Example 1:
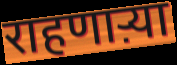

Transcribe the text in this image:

राहणाऱ्‍या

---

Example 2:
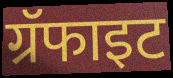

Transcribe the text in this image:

ग्रॅफाइट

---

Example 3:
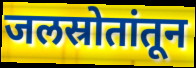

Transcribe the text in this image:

जलस्रोतांतून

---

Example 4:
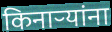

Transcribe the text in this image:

किनाऱ्यांना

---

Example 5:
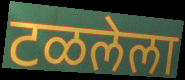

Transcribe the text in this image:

टळलेला